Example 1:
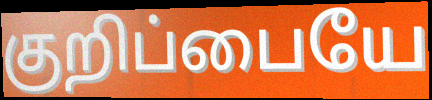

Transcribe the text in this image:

குறிப்பையே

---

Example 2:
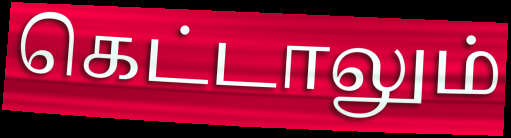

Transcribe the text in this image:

கெட்டாலும்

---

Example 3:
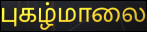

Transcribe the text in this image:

புகழ்மாலை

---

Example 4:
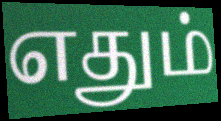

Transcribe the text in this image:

எதும்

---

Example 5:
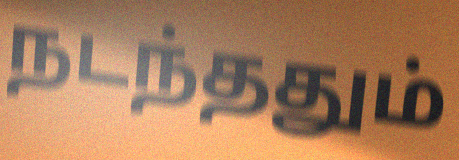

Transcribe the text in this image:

நடந்ததும்